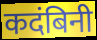
कदंबिनी